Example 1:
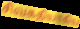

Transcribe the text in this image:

சிவகதியாகிய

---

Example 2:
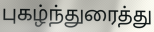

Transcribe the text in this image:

புகழ்ந்துரைத்து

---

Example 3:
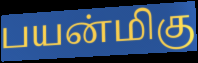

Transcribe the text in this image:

பயன்மிகு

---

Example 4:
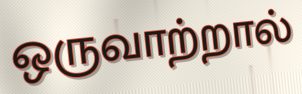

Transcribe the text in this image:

ஒருவாற்றால்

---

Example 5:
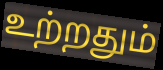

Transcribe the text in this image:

உற்றதும்